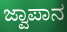
ಜ್ವಾಪಾನ